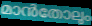
മാൻതോലും